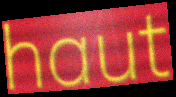
haut